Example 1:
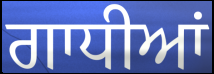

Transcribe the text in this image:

ਗਾਧੀਆਂ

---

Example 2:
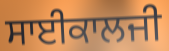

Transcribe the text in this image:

ਸਾਈਕਾਲਜੀ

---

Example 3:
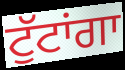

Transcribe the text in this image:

ਟੁੱਟਾਂਗਾ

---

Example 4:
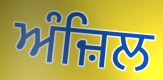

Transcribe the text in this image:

ਅੰਜ਼ਿਲ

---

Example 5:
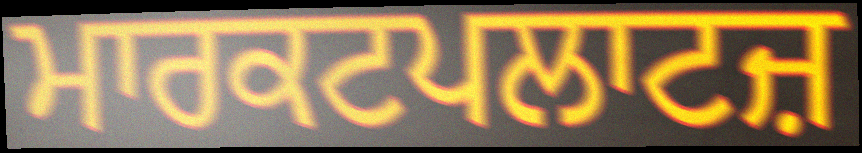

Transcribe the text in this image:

ਮਾਰਕਟਪਲਾਟਜ਼